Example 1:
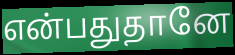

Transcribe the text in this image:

என்பதுதானே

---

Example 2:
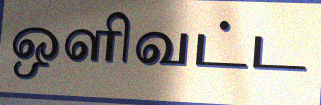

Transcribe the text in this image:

ஒளிவட்ட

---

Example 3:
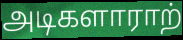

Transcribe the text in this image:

அடிகளாராற்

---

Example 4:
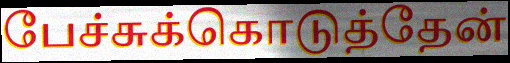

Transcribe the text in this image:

பேச்சுக்கொடுத்தேன்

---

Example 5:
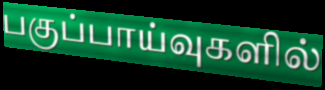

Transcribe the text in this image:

பகுப்பாய்வுகளில்